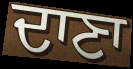
ਦਾਣਾ